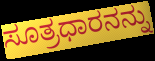
ಸೂತ್ರಧಾರನನ್ನು